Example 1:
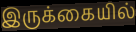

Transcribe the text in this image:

இருக்கையில்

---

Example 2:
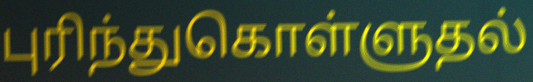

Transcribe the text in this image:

புரிந்துகொள்ளுதல்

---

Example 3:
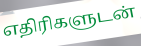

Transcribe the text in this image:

எதிரிகளுடன்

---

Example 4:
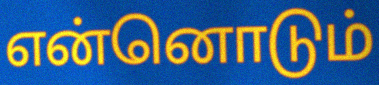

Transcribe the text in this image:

என்னொடும்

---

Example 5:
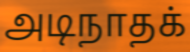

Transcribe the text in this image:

அடிநாதக்